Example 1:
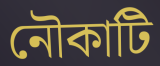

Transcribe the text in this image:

নৌকাটি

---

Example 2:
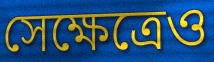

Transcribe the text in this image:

সেক্ষেত্রেও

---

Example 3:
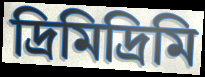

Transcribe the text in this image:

দ্রিমিদ্রিমি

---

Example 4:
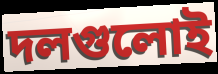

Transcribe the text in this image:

দলগুলোই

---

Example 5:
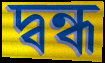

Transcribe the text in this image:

দ্বন্ধ